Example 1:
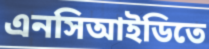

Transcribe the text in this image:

এনসিআইডিতে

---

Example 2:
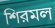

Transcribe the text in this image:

শিরমল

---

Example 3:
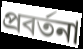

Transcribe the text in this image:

প্রবর্তনা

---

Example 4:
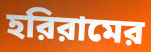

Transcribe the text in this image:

হরিরামের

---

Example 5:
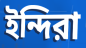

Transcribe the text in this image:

ইন্দিরা